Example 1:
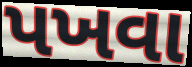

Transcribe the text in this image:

પખવા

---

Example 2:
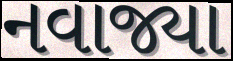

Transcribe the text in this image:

નવાજ્યા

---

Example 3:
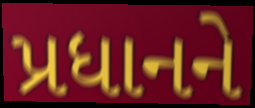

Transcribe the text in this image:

પ્રધાનને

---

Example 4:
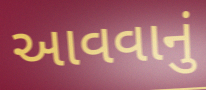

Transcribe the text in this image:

આવવાનું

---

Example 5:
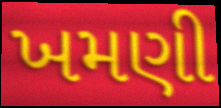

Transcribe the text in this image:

ખમણી